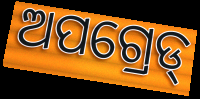
ଅପଗ୍ରେଡ୍